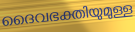
ദൈവഭക്തിയുമുള്ള